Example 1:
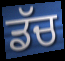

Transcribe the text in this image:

ਡੱਚ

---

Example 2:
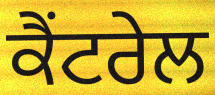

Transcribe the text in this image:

ਕੈਂਟਰੇਲ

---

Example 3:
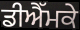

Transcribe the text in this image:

ਡੀਐੱਮਕੇ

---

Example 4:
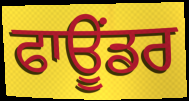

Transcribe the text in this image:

ਫਾਊਂਡਰ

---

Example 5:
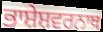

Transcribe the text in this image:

ਭਾਸ਼ੇਸ਼ਵਰਨਾਥ